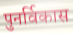
पुनर्विकास